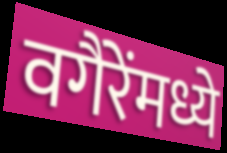
वगैरेंमध्ये